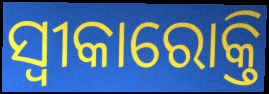
ସ୍ୱୀକାରୋକ୍ତି